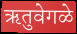
ऋतुवेगळे